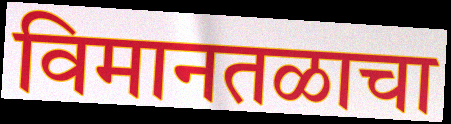
विमानतळाचा